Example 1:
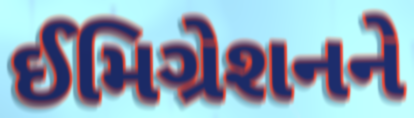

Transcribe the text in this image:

ઈમિગ્રેશનને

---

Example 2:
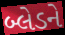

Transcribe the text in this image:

બ્લેડને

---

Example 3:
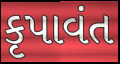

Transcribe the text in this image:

કૃપાવંત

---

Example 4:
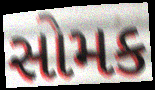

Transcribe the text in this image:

સોમક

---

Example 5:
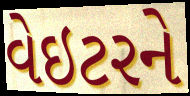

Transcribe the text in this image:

વેઇટરને